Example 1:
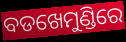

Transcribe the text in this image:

ବଡଖେମୁଣ୍ଡିରେ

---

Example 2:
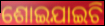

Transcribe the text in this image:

ଶୋଇଯାଇଚି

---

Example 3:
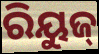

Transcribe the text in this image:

ରିୟୁଜ୍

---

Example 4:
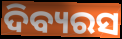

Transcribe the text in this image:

ଦିବ୍ୟରସ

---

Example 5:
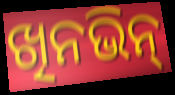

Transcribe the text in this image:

ଖିନଭିନ୍